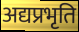
अद्यप्रभृति